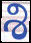
శి